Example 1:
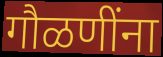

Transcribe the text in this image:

गौळणींना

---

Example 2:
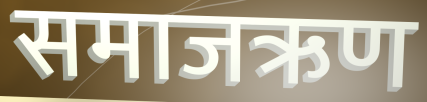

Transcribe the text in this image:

समाजऋण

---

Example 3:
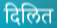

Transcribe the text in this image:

दिलित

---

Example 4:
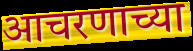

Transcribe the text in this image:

आचरणाच्या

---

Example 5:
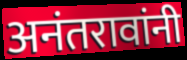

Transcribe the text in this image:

अनंतरावांनी